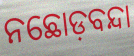
ନଛୋଡ଼ବନ୍ଦା